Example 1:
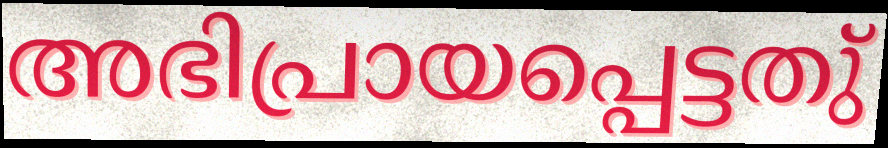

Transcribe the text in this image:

അഭിപ്രായപ്പെട്ടതു്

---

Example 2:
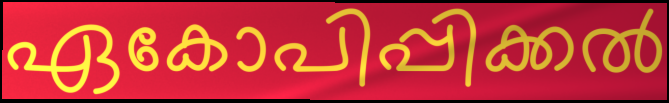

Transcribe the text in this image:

ഏകോപിപ്പിക്കൽ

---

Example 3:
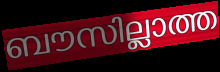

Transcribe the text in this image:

ബൗസില്ലാത്ത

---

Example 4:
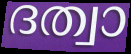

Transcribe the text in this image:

ദത്വാ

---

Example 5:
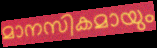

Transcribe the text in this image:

മാനസികമായും